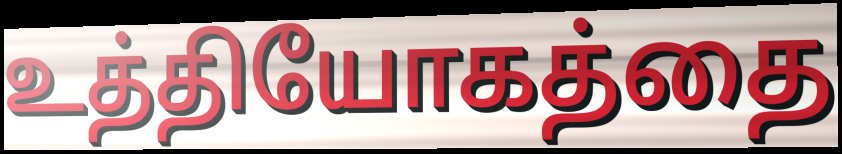
உத்தியோகத்தை